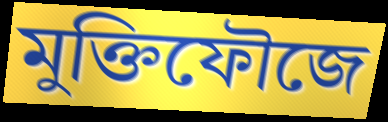
মুক্তিফৌজে